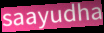
saayudha